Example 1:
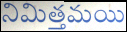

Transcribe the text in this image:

నిమిత్తమయి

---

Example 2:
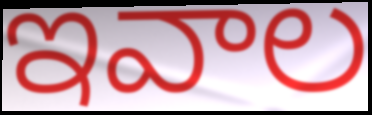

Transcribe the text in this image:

ఇవాల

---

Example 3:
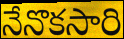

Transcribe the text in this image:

నేనొకసారి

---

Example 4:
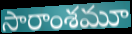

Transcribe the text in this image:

సారాంశమూ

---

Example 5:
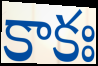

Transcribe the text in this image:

కాకః